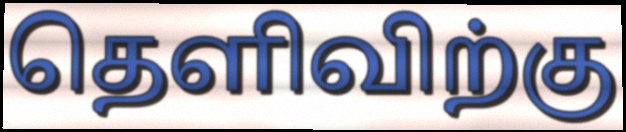
தெளிவிற்கு